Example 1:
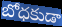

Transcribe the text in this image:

బోధకుడా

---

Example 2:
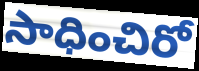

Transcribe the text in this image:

సాధించిరో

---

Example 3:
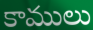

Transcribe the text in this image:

కాములు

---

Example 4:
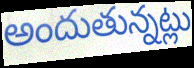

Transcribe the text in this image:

అందుతున్నట్లు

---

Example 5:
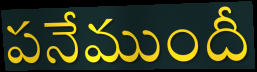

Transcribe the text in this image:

పనేముందీ